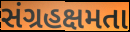
સંગ્રહક્ષમતા